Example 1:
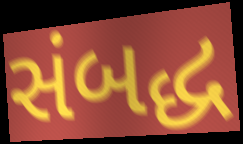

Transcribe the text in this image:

સંબદ્ધ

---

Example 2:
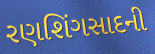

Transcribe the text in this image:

રણશિંગસાદની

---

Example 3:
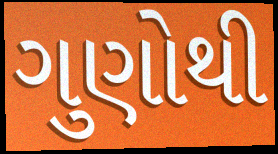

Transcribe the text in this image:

ગુણોથી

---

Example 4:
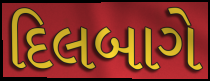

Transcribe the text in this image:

દિલબાગે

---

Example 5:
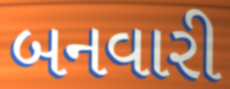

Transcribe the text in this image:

બનવારી